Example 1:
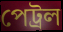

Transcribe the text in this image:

পেট্ৰল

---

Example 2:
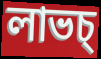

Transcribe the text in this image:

লাভচ্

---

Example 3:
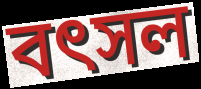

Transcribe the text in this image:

বৎসল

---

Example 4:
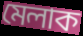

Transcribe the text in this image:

মেলাক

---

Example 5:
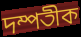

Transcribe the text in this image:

দম্পতীক